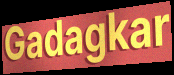
Gadagkar